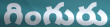
గింగురు